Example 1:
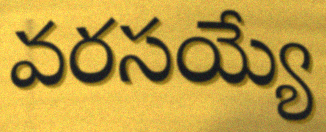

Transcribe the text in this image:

వరసయ్యే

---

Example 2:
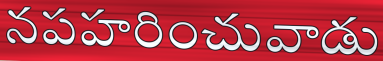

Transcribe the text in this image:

నపహరించువాడు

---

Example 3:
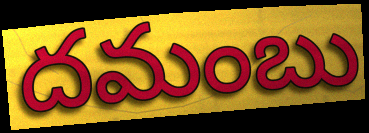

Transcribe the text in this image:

దమంబు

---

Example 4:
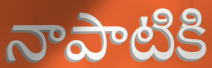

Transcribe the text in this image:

నాపాటికి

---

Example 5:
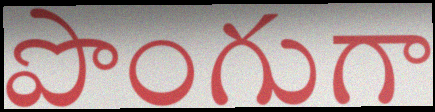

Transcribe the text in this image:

పొంగుగా